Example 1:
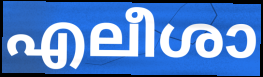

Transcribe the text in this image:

എലീശാ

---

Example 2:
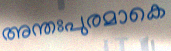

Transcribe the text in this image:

അന്തഃപുരമാകെ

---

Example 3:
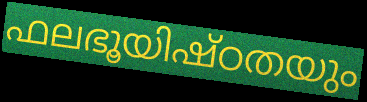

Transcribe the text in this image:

ഫലഭൂയിഷ്ഠതയും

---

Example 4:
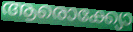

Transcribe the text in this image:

ആരൊക്ക്യോ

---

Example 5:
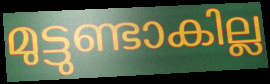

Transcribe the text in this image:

മുട്ടുണ്ടാകില്ല